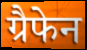
ग्रैफेन